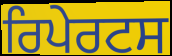
ਰਿਪੇਰਟਸ